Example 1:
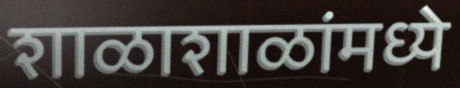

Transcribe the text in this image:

शाळाशाळांमध्ये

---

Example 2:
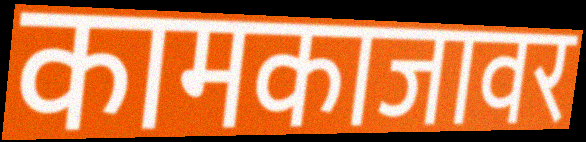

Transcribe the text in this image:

कामकाजावर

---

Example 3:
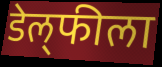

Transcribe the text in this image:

डेल्फीला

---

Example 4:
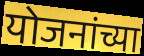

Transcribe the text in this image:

योजनांच्या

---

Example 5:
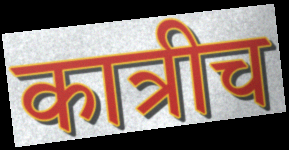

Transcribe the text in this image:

कात्रीच